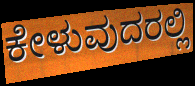
ಕೇಳುವುದರಲ್ಲಿ